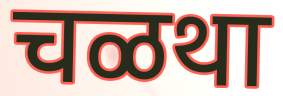
चळथा